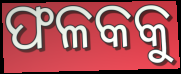
ଫଳକକୁ